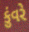
કુંવરે